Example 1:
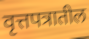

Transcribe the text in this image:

वृत्तपत्रातील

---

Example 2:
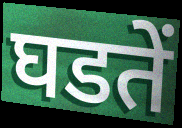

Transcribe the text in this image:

घडतें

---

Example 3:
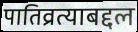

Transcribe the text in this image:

पातिव्रत्याबद्दल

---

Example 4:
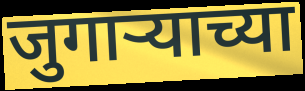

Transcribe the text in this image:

जुगाऱ्याच्या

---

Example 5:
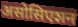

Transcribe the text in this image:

असोसिएशन